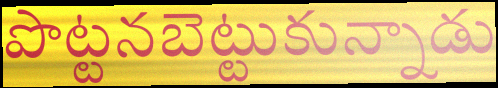
పొట్టనబెట్టుకున్నాడు